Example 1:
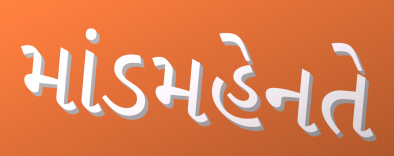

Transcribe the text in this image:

માંડમહેનતે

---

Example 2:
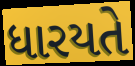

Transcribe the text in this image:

ધારયતે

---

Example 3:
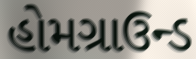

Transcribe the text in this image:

હોમગ્રાઉન્ડ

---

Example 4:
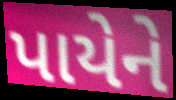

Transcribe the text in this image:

પાયેને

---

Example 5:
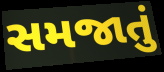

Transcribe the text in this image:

સમજાતું